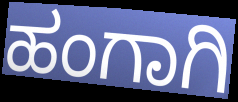
ಹಂಗಾಗಿ